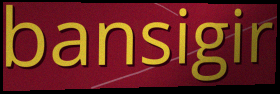
bansigir